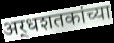
अर्धशतकांच्या